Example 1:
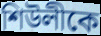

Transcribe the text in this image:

শিউলীকে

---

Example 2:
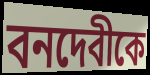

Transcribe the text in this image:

বনদেবীকে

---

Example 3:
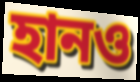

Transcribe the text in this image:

হানও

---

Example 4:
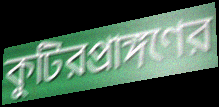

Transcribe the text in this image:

কুটিরপ্রাঙ্গণের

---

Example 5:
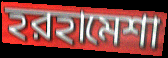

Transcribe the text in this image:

হরহামেশা